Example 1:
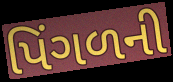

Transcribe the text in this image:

પિંગળની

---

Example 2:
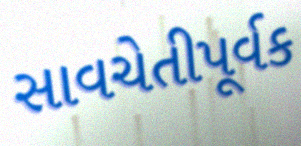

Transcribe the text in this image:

સાવચેતીપૂર્વક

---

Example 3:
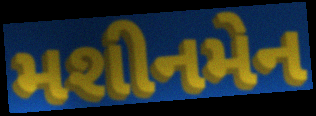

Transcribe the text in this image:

મશીનમેન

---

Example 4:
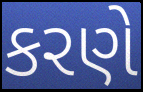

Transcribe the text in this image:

કરણે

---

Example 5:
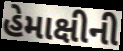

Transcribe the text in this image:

હેમાક્ષીની